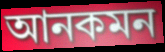
আনকমন